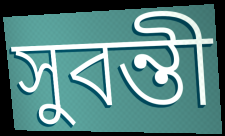
সুবন্তী